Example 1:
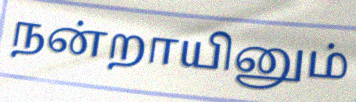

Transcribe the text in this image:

நன்றாயினும்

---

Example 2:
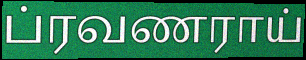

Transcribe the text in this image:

ப்ரவணராய்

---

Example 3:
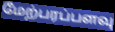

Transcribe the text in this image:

மேற்பரப்பளவு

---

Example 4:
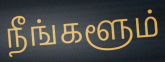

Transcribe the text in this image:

நீங்களூம்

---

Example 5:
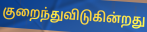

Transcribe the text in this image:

குறைந்துவிடுகின்றது